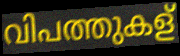
വിപത്തുകള്